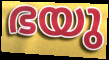
ഭയു